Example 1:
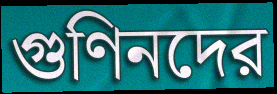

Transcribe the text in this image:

গুণিনদের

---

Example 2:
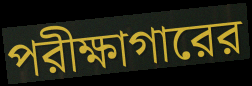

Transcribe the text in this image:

পরীক্ষাগারের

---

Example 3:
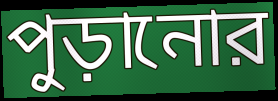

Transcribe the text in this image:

পুড়ানোর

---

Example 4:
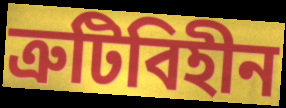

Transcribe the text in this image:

ত্রুটিবিহীন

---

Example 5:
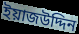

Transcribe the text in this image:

ইয়াজউদ্দিন